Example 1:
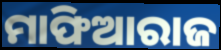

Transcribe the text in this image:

ମାଫିଆରାଜ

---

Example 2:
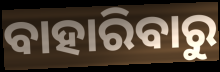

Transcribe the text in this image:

ବାହାରିବାରୁ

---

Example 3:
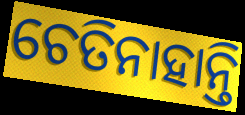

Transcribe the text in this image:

ଚେତିନାହାନ୍ତି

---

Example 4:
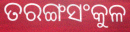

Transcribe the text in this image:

ତରଙ୍ଗସଂକୁଳ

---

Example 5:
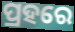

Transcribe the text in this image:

ପ୍ରହରେ